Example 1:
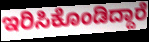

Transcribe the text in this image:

ಇರಿಸಿಕೊಂಡಿದ್ದಾರೆ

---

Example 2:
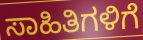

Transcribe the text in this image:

ಸಾಹಿತಿಗಳಿಗೆ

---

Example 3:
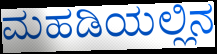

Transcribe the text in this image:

ಮಹಡಿಯಲ್ಲಿನ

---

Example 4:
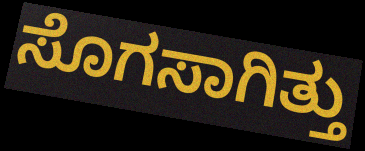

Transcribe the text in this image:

ಸೊಗಸಾಗಿತ್ತು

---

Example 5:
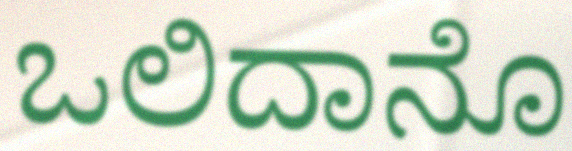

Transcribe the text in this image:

ಒಲಿದಾನೊ